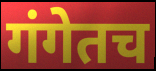
गंगेतच